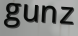
gunz